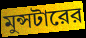
মুন্সটারের